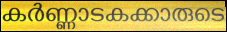
കർണ്ണാടകക്കാരുടെ